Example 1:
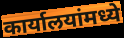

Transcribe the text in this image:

कार्यालयांमध्ये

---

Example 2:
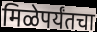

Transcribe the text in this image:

मिळेपर्यंतचा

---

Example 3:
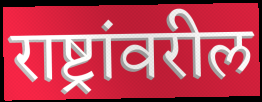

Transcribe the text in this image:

राष्ट्रांवरील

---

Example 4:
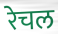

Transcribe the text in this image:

रेचल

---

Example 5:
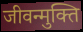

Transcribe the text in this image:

जीवन्मुक्ति